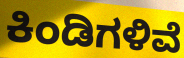
ಕಿಂಡಿಗಳಿವೆ